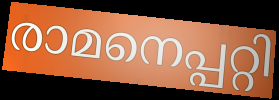
രാമനെപ്പറ്റി